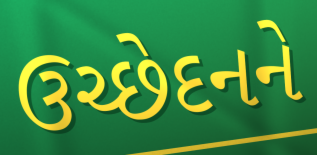
ઉચ્છેદનને